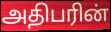
அதிபரின்